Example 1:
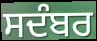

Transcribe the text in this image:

ਸਦੰਬਰ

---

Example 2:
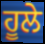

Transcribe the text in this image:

ਹੂਲੇ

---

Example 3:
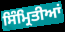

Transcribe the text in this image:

ਸਿੰਮ੍ਰਿਤੀਆਂ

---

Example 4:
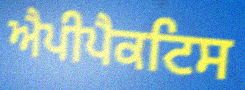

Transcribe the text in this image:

ਐਪੀਪੈਕਟਿਸ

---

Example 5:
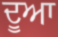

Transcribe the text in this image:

ਦੂਆ